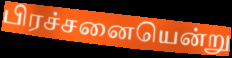
பிரச்சனையென்று